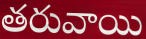
తరువాయి